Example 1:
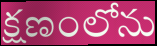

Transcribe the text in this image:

క్షణంలోను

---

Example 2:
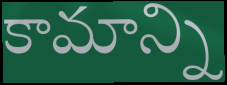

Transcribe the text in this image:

కామాన్ని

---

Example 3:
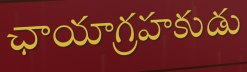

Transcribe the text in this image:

ఛాయాగ్రహకుడు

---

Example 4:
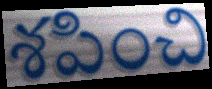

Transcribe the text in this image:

శపించి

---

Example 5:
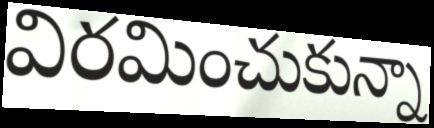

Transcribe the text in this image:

విరమించుకున్నా